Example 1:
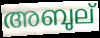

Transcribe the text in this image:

അബുല്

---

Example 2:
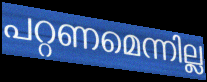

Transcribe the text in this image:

പറ്റണമെന്നില്ല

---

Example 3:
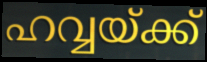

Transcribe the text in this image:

ഹവ്വയ്ക്ക്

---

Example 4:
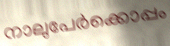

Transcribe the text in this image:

നാലുപേർക്കൊപ്പം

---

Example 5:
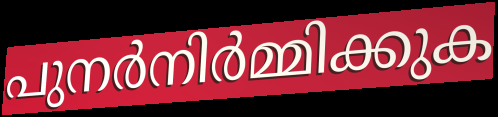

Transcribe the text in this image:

പുനർനിർമ്മിക്കുക